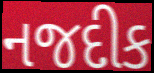
નજદીક